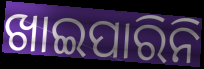
ଖାଇପାରିନି